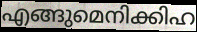
എങ്ങുമെനിക്കിഹ